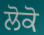
ਲੋਕੋ